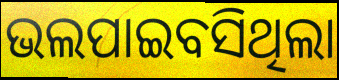
ଭଲପାଇବସିଥିଲା